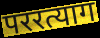
पररत्याग